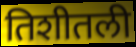
तिशीतली